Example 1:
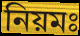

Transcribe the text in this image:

নিয়মঃ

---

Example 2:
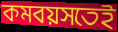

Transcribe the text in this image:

কমবয়সতেই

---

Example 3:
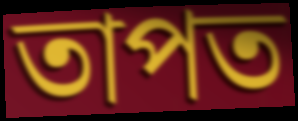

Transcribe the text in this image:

তাপত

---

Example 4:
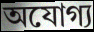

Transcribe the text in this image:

অযোগ্য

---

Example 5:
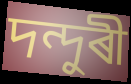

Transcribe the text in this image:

দন্দুৰী